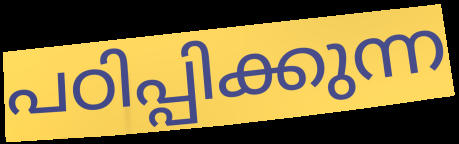
പഠിപ്പിക്കുന്ന